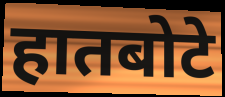
हातबोटे